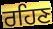
ਰਹਿਣ